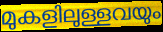
മുകളിലുള്ളവയും